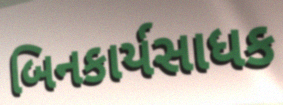
બિનકાર્યસાધક